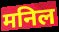
मनिल